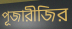
পূজারীজির